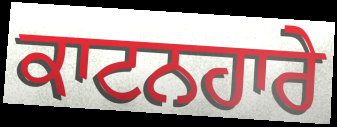
ਕਾਟਨਹਾਰੇ